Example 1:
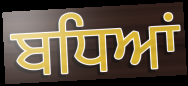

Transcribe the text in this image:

ਬਧਿਆਂ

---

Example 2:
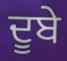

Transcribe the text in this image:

ਦੂਬੇ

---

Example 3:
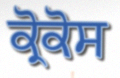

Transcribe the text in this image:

ਕ੍ਰੋਕੋਸ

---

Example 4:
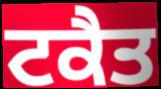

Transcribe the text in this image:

ਟਕੈਤ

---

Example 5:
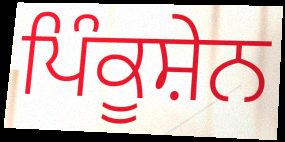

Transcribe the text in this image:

ਪਿੰਕੂਸ਼ੇਨ